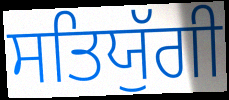
ਸਤਿਯੁੱਗੀ